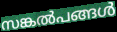
സങ്കൽപങ്ങൾ